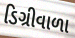
ડિગ્રીવાળા